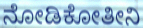
ನೋಡಿಕೋತೀನಿ